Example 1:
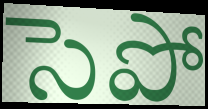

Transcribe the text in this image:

సెపో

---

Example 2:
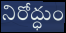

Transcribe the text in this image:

నిరోద్ధుం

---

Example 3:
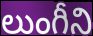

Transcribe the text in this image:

లుంగీని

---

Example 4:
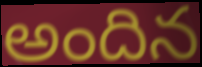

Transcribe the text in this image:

అందిన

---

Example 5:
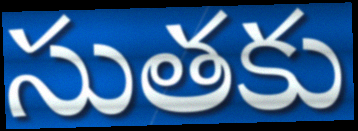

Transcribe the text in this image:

సుతకు